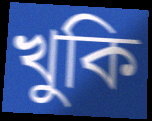
খুকি